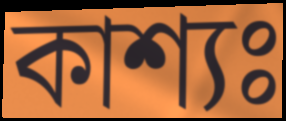
কাশ্যঃ